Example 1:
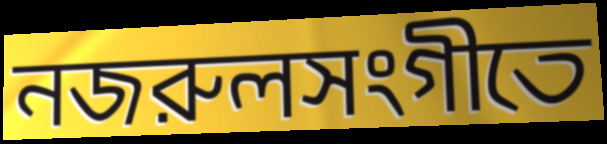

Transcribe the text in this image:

নজরুলসংগীতে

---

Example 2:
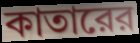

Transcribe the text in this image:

কাতারের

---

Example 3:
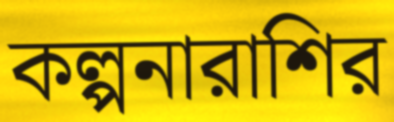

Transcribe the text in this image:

কল্পনারাশির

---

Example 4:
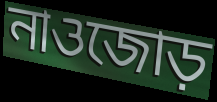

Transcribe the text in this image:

নাওজোড়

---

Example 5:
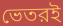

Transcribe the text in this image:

ভেতরই